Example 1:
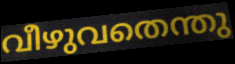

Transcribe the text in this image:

വീഴുവതെന്തു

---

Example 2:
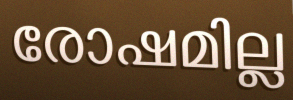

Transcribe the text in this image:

രോഷമില്ല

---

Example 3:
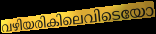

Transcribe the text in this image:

വഴിയരികിലെവിടെയോ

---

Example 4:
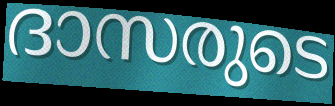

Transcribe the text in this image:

ദാസരുടെ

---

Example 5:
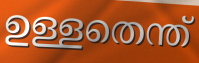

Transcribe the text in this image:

ഉള്ളതെന്ത്